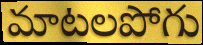
మాటలపోగు